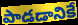
పాడడానికే